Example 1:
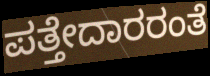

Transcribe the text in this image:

ಪತ್ತೇದಾರರಂತೆ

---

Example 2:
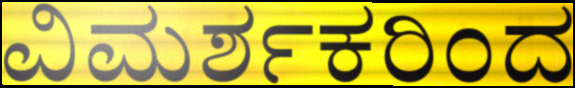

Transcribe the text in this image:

ವಿಮರ್ಶಕರಿಂದ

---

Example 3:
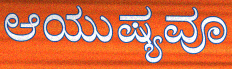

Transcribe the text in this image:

ಆಯುಷ್ಯವೂ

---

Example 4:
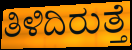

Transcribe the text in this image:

ತಿಳಿದಿರುತ್ತೆ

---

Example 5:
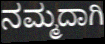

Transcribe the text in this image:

ನಮ್ಮದಾಗಿ